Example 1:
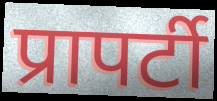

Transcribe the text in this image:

प्रापर्टी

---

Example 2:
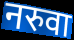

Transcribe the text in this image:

नरुवा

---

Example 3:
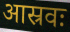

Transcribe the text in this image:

आस्रवः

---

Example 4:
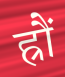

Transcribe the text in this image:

ह्रौं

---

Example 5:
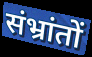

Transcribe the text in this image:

संभ्रांतों